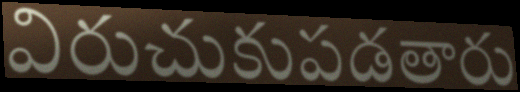
విరుచుకుపడతారు